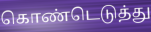
கொண்டெடுத்து